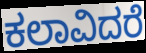
ಕಲಾವಿದರೆ